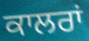
ਕਾਲਰਾਂ